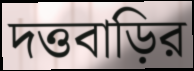
দত্তবাড়ির